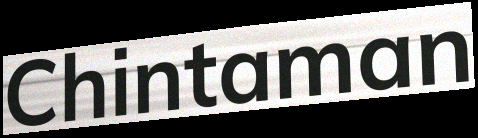
Chintaman